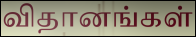
விதானங்கள்